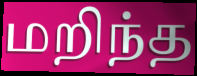
மறிந்த